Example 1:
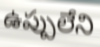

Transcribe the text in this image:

ఉప్పులేని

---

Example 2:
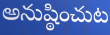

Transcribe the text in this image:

అనుష్ఠించుట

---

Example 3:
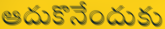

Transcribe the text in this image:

ఆదుకొనేందుకు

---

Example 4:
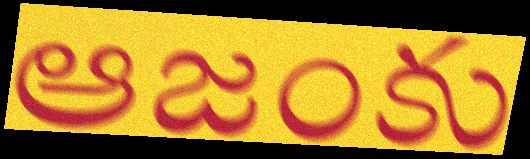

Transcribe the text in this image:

ఆజంకు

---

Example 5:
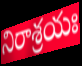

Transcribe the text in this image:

నిరాశ్రయః